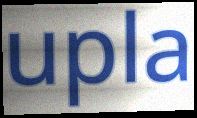
upla